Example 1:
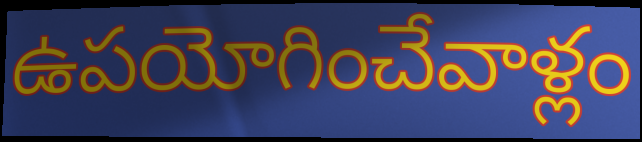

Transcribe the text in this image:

ఉపయోగించేవాళ్లం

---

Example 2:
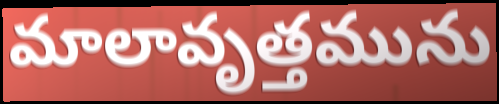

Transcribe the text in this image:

మాలావృత్తమును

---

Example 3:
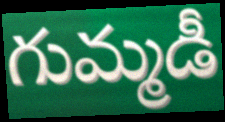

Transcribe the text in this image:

గుమ్మడీ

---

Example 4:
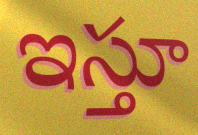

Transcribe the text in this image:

ఇస్తూ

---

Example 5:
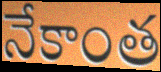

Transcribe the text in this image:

నేకాంత